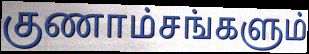
குணாம்சங்களும்